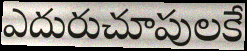
ఎదురుచూపులకే